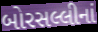
બોરસલ્લીનાં